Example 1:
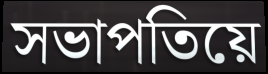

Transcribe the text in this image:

সভাপতিয়ে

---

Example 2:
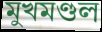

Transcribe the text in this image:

মুখমণ্ডল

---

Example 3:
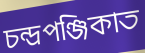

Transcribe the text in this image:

চন্দ্ৰপঞ্জিকাত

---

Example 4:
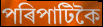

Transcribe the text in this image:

পৰিপাটিকৈ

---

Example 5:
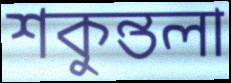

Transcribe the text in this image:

শকুন্তলা